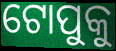
ଟୋପୁକୁ